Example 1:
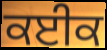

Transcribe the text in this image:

ਕਈਕ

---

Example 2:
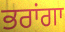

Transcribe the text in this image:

ਭਰਾਂਗਾ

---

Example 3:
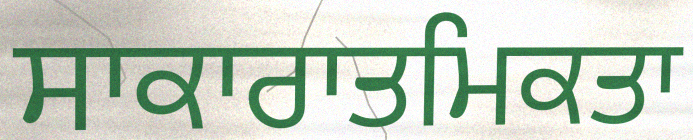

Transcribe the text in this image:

ਸਾਕਾਰਾਤਮਿਕਤਾ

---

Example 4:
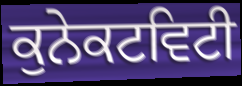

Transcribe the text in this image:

ਕੁਨੇਕਟਵਿਟੀ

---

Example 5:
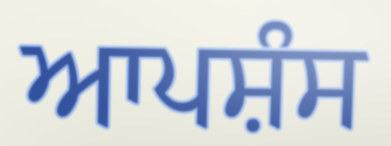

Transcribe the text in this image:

ਆਪਸ਼ੰਸ